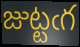
జుట్టఁగ